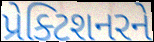
પ્રેક્ટિશનરને